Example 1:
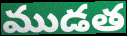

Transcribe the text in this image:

ముడత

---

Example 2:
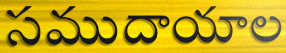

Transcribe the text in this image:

సముదాయాల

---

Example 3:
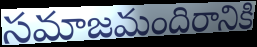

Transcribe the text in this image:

సమాజమందిరానికి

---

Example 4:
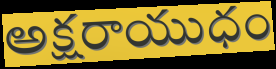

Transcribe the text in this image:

అక్షరాయుధం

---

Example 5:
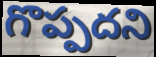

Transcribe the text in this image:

గొప్పదని